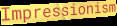
Impressionism